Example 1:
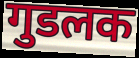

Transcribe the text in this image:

गुडलक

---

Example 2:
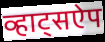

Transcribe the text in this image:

व्हाट्सऐप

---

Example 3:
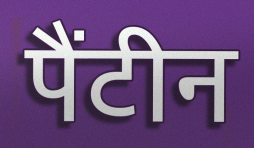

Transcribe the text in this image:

पैंटीन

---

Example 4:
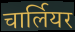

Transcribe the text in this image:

चार्लियर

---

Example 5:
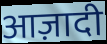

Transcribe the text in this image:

आज़ादी